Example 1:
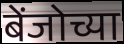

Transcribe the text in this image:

बेंजोच्या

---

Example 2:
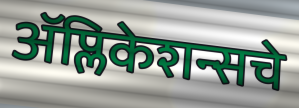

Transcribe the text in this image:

ॲप्लिकेशन्सचे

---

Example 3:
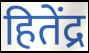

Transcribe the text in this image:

हितेंद्र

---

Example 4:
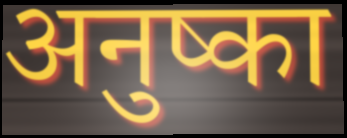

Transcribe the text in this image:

अनुष्का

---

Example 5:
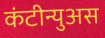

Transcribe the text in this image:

कंटीन्युअस